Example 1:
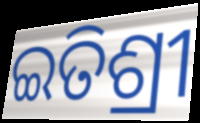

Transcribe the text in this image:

ଇତିଶ୍ରୀ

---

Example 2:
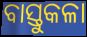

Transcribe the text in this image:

ବାସ୍ତୁକଳା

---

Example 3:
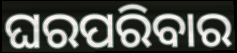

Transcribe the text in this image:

ଘରପରିବାର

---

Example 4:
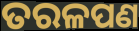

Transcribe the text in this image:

ତରଳପଣ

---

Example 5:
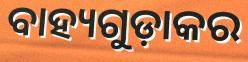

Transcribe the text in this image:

ବାହ୍ୟଗୁଡ଼ାକର